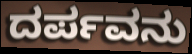
ದರ್ಪವನು